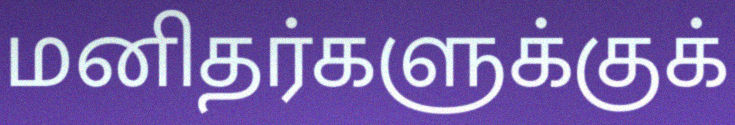
மனிதர்களுக்குக்